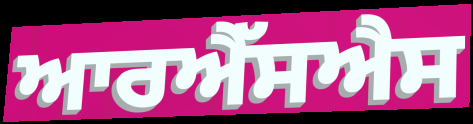
ਆਰਐੱਸਐਸ